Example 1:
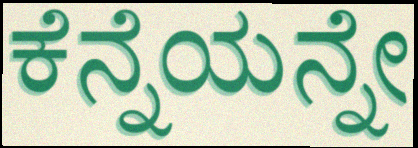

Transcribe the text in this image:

ಕೆನ್ನೆಯನ್ನೇ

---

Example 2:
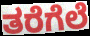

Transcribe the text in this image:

ತರೆಗೆಲೆ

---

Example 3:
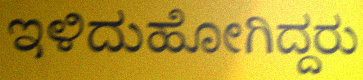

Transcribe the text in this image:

ಇಳಿದುಹೋಗಿದ್ದರು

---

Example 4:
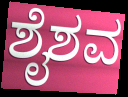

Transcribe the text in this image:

ಶೈಶವ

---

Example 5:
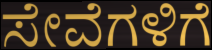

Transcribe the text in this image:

ಸೇವೆಗಳಿಗೆ